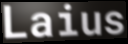
Laius